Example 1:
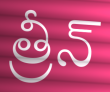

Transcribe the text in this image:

త్రీన్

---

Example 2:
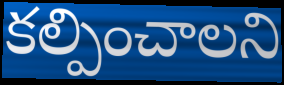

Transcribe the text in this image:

కల్పించాలని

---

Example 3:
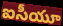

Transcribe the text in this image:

ఐసీయూ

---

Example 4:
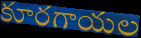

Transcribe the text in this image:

కూరగాయల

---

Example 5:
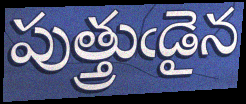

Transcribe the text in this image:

పుత్త్రుఁడైన